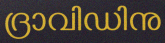
ദ്രാവിഡിനു